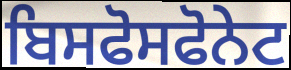
ਬਿਸਫੋਸਫੋਨੇਟ